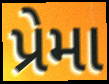
પ્રેમા